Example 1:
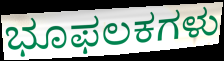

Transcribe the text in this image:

ಭೂಫಲಕಗಳು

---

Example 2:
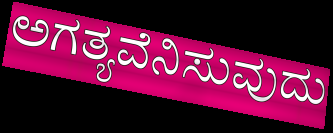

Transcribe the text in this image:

ಅಗತ್ಯವೆನಿಸುವುದು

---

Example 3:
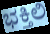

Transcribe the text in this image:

ಭಕ್ತಿಲಿ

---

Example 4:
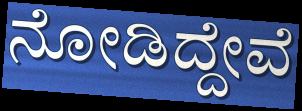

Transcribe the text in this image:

ನೋಡಿದ್ದೇವೆ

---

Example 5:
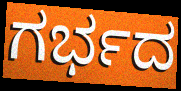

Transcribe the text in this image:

ಗರ್ಭದ